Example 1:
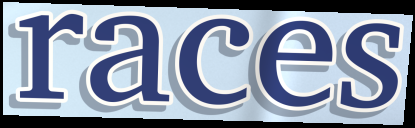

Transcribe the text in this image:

races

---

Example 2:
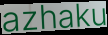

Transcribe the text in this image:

azhaku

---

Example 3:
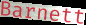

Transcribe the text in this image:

Barnett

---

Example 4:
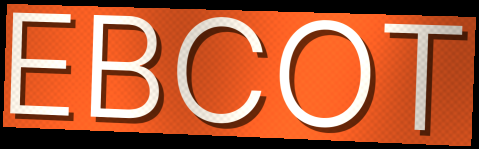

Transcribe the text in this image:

EBCOT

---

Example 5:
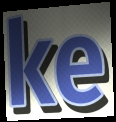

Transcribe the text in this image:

ke